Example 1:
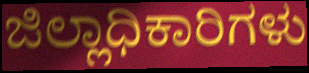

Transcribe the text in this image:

ಜಿಲ್ಲಾಧಿಕಾರಿಗಳು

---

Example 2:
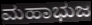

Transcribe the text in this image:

ಮಹಾಭುಜ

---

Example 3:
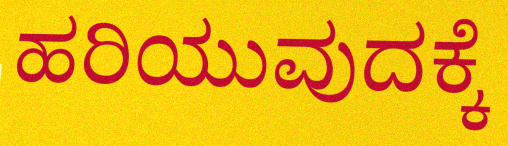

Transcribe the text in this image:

ಹರಿಯುವುದಕ್ಕೆ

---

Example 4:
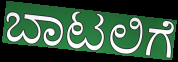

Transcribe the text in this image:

ಬಾಟಲಿಗೆ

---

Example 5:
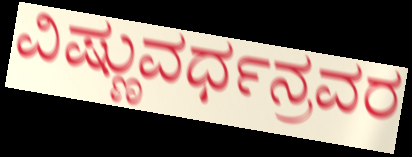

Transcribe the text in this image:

ವಿಷ್ಣುವರ್ಧನ್ರವರ